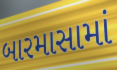
બારમાસામાં